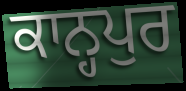
ਕਾਨ੍ਹਪੁਰ